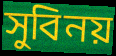
সুবিনয়